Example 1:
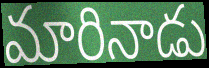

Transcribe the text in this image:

మారినాడు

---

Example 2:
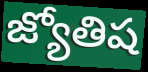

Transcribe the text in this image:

జ్యోతిష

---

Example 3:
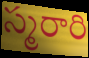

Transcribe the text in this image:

స్మరారి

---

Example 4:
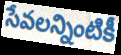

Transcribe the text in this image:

సేవలన్నింటికీ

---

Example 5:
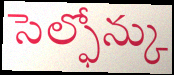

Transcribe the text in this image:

సెల్ఫోన్కు